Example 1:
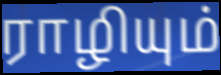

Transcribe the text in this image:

ராழியும்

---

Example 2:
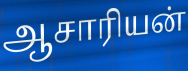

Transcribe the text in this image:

ஆசாரியன்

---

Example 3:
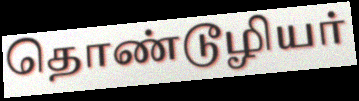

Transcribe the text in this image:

தொண்டூழியர்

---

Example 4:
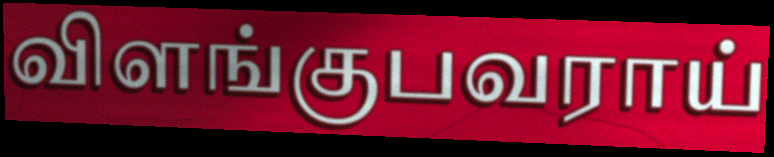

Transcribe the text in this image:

விளங்குபவராய்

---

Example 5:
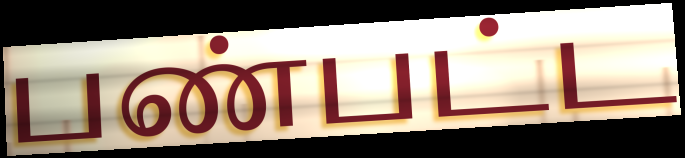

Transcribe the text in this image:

பண்பட்ட